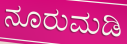
ನೂರುಮಡಿ